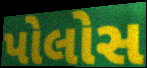
પોલોસ